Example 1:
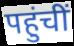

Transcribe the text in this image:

पहुंचीं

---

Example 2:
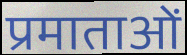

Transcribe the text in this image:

प्रमाताओं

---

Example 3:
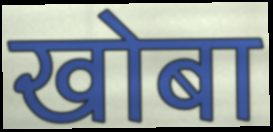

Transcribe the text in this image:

खोबा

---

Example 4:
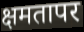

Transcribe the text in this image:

क्षमतापर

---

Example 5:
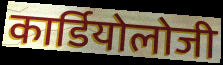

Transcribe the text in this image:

कार्डियोलोजी